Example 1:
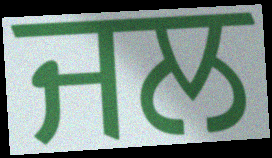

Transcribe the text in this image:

ਜਲ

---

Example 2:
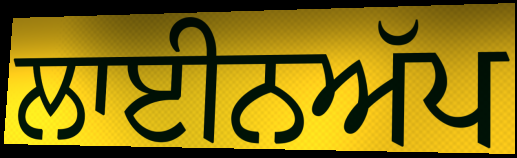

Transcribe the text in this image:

ਲਾਈਨਅੱਪ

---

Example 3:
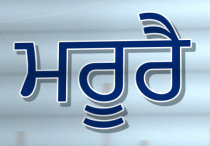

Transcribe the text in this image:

ਮਰੂਰੈ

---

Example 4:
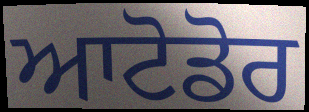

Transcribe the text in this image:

ਆਟੋਡੋਰ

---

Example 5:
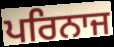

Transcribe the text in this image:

ਪਰਿਨਾਜ